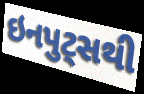
ઇનપુટ્સથી